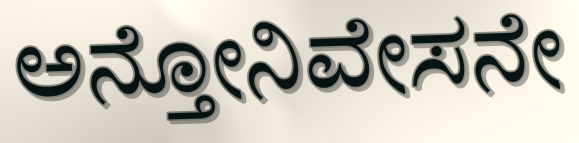
ಅನ್ತೋನಿವೇಸನೇ